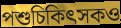
পশুচিকিৎসকও